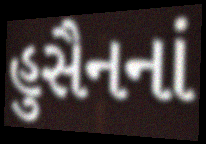
હુસૈનનાં